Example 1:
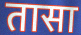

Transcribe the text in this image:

तासा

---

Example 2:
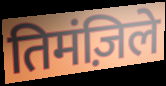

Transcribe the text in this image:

तिमंज़िले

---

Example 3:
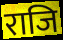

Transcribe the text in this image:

राजि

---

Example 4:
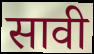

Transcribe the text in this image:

सावी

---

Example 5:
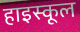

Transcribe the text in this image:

हाइस्कूल